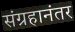
संग्रहानंतर